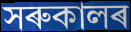
সৰুকালৰ